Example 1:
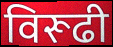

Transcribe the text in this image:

विरूढी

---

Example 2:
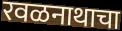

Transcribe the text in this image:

रवळनाथाचा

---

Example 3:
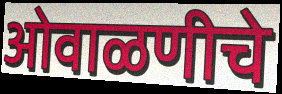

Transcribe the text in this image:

ओवाळणीचे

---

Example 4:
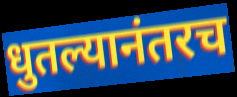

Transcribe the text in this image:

धुतल्यानंतरच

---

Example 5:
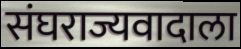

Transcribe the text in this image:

संघराज्यवादाला